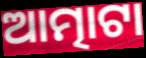
ଆତ୍ମାଟା